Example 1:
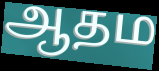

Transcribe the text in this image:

ஆதம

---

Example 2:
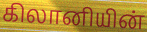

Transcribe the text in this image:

கிலானியின்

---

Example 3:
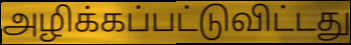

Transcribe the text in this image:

அழிக்கப்பட்டுவிட்டது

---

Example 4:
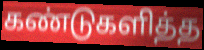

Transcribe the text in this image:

கண்டுகளித்த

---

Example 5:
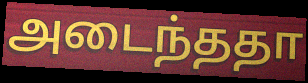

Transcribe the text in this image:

அடைந்ததா